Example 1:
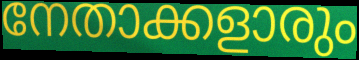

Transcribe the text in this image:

നേതാക്കളാരും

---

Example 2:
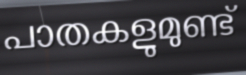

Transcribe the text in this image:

പാതകളുമുണ്ട്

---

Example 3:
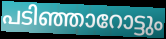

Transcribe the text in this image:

പടിഞ്ഞാറോട്ടും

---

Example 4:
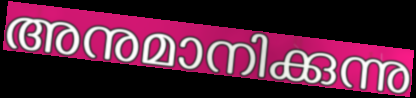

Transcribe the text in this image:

അനുമാനിക്കുന്നു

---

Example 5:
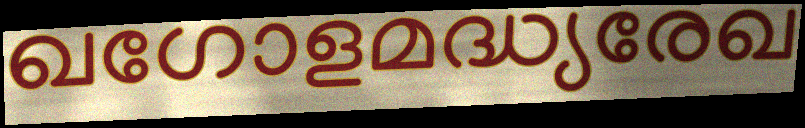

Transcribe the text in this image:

ഖഗോളമദ്ധ്യരേഖ